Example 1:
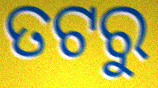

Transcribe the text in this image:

ତଟରୁ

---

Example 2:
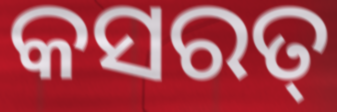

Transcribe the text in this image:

କସରତ୍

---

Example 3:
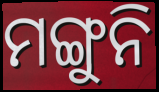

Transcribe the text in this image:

ମଙ୍ଗୁନି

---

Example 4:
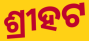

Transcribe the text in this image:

ଶ୍ରୀହଟ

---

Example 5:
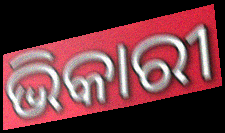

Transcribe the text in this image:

ଭିକାରୀ